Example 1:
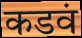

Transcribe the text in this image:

कडवं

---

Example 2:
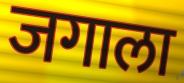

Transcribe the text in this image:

जगाला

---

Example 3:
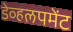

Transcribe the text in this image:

डेव्हलपमेंट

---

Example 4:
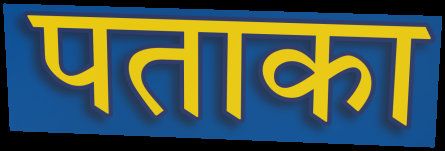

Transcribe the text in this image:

पताका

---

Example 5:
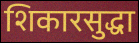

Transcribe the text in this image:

शिकारसुद्धा